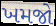
ખમજો